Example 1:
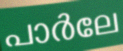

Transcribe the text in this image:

പാർലേ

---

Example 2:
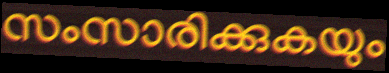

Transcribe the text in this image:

സംസാരിക്കുകയും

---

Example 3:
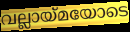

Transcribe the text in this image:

വല്ലായ്മയോടെ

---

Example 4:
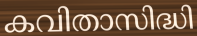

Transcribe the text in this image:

കവിതാസിദ്ധി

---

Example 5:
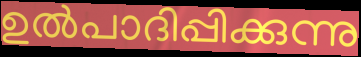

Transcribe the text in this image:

ഉൽപാദിപ്പിക്കുന്നു